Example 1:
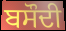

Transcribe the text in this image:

ਬਸੌਦੀ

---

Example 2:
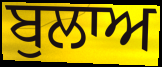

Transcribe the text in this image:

ਬੁਲਾਅ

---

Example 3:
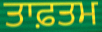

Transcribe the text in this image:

ਤਾਫ਼ਤਮ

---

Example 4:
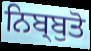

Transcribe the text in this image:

ਨਿਬ੍ਬੁਤੋ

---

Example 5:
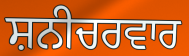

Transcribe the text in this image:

ਸ਼ਨੀਚਰਵਾਰ